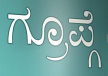
ಗ್ರೂಪ್ಗೆ